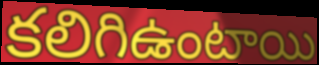
కలిగిఉంటాయి